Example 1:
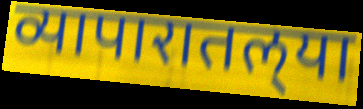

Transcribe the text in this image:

व्यापारातल्या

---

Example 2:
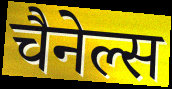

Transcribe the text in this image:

चैनेल्स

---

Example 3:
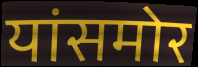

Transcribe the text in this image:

यांसमोर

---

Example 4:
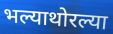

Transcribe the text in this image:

भल्याथोरल्या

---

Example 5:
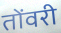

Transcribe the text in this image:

तोंवरी